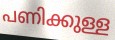
പണിക്കുള്ള